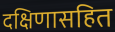
दक्षिणासहित